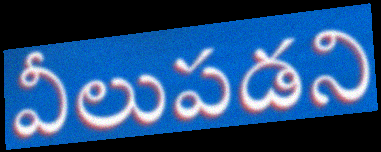
వీలుపడని